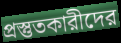
প্রস্তুতকারীদের